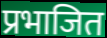
प्रभाजित